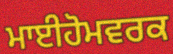
ਮਾਈਹੋਮਵਰਕ